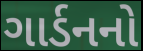
ગાર્ડનનો